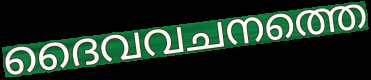
ദൈവവചനത്തെ